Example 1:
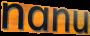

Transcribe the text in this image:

nanu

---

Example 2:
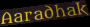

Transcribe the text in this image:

Aaradhak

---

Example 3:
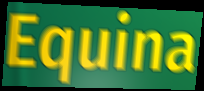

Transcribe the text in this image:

Equina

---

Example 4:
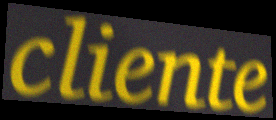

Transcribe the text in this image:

cliente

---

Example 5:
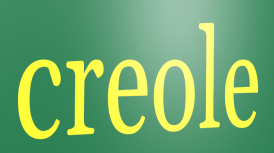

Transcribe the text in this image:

creole